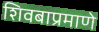
शिवबाप्रमाणे